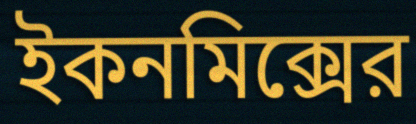
ইকনমিক্সের